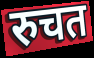
रुचत